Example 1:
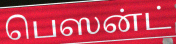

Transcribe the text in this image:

பெஸன்ட்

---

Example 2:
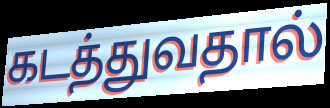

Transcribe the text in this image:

கடத்துவதால்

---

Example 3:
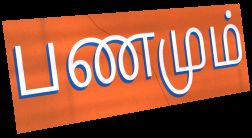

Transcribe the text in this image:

பணமும்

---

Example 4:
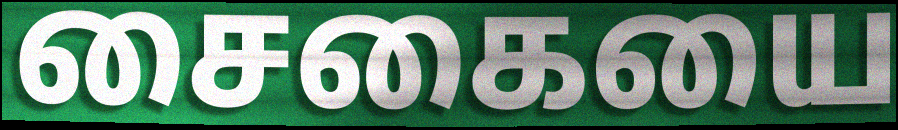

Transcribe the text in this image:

சைகையை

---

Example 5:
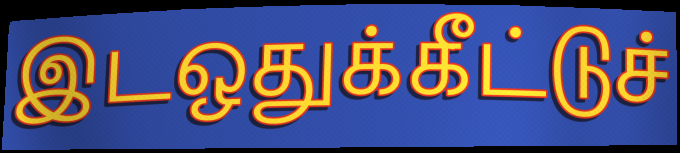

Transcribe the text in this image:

இடஒதுக்கீட்டுச்